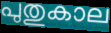
പുതുകാല